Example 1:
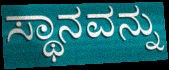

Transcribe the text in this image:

ಸ್ಥಾನವನ್ನು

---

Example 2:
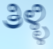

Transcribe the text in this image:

ತಿಳ್ಳಿ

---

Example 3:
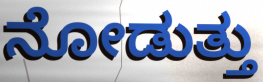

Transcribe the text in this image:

ನೋಡುತ್ತು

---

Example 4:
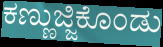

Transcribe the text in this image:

ಕಣ್ಣುಜ್ಜಿಕೊಂಡು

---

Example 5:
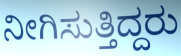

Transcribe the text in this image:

ನೀಗಿಸುತ್ತಿದ್ದರು